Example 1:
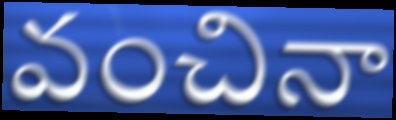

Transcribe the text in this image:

వంచినా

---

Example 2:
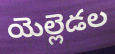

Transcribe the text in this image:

యెల్లెడల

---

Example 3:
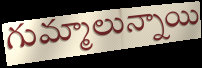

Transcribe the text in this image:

గుమ్మాలున్నాయి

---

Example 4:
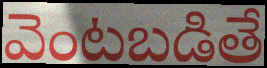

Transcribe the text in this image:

వెంటబడితే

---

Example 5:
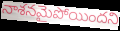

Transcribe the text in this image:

నాశనమైపోయిందని